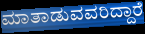
ಮಾತಾಡುವವರಿದ್ದಾರೆ